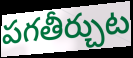
పగతీర్చుట